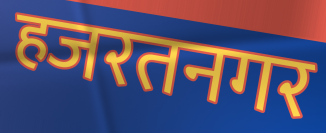
हजरतनगर